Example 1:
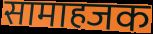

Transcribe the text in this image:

सामाहजक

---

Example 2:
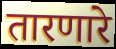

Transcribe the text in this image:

तारणारे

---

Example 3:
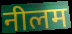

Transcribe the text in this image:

नीलम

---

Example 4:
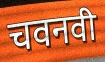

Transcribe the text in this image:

चवनवी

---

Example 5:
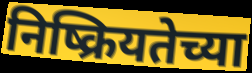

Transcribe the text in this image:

निष्क्रियतेच्या